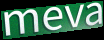
meva